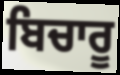
ਬਿਚਾਰੂ